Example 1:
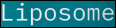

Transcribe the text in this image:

Liposome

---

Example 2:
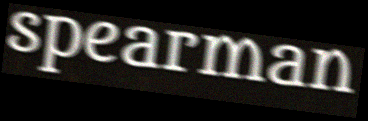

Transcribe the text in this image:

spearman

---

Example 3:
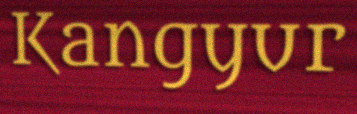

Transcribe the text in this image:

Kangyur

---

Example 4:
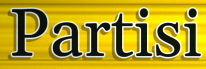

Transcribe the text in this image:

Partisi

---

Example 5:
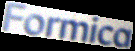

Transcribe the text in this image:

Formica